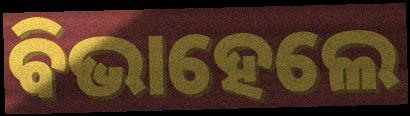
ବିଭାହେଲେ